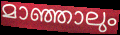
മാഞ്ഞാലും